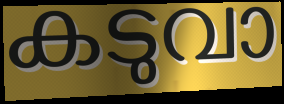
കടുവാ